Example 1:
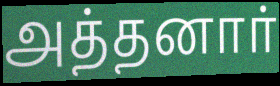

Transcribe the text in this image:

அத்தனார்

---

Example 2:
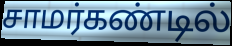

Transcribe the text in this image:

சாமர்கண்டில்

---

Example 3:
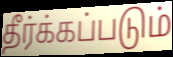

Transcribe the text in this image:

தீர்க்கப்படும்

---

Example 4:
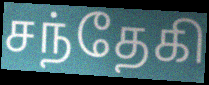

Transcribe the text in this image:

சந்தேகி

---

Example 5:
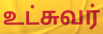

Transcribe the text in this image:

உட்சுவர்